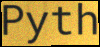
Pyth